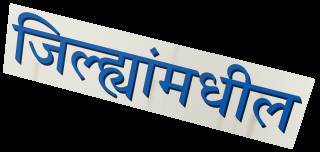
जिल्ह्यांमधील